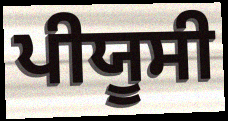
ਪੀਯੂਸੀ